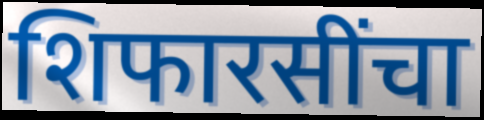
शिफारसींचा